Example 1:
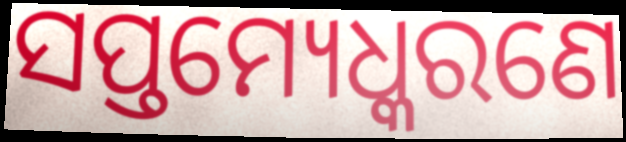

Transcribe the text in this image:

ସପ୍ତମ୍ୟେଧ୍କରଣେ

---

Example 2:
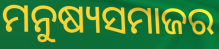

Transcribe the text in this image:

ମନୁଷ୍ୟସମାଜର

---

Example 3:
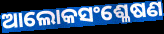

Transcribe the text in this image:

ଆଲୋକସଂଶ୍ଳେଷଣ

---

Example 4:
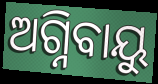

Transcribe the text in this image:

ଅଗ୍ନିବାୟୁ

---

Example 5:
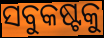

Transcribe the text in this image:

ସବୁକଷ୍ଟକୁ